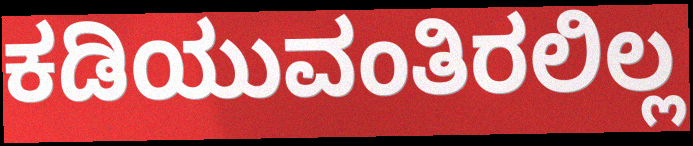
ಕಡಿಯುವಂತಿರಲಿಲ್ಲ